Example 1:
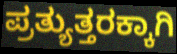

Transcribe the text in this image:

ಪ್ರತ್ಯುತ್ತರಕ್ಕಾಗಿ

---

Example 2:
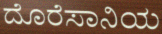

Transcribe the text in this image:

ದೊರೆಸಾನಿಯ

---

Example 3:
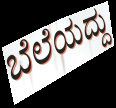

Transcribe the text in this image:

ಬೆಲೆಯದ್ದು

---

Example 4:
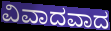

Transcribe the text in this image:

ವಿವಾದವಾದ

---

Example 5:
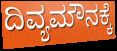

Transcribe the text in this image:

ದಿವ್ಯಮೌನಕ್ಕೆ